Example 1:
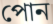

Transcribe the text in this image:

পোন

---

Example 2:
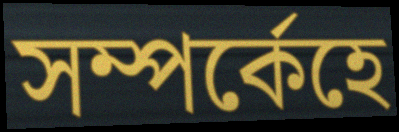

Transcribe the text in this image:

সম্পৰ্কেহে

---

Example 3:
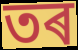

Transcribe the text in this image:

তৰ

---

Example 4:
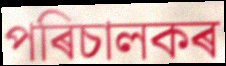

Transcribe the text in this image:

পৰিচালকৰ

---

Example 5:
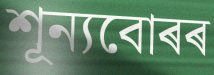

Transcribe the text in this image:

শূন্যবোৰৰ